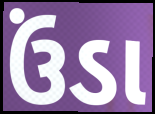
ઉંડા